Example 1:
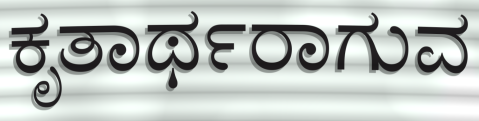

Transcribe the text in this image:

ಕೃತಾರ್ಥರಾಗುವ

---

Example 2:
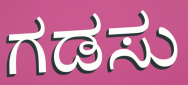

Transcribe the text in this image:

ಗಡಸು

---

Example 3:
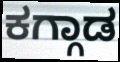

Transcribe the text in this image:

ಕಗ್ಗಾಡ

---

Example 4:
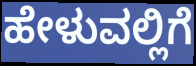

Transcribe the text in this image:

ಹೇಳುವಲ್ಲಿಗೆ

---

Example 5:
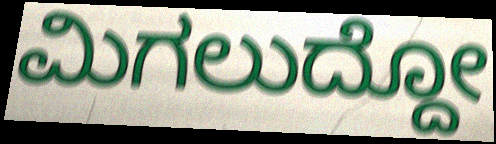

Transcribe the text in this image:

ಮಿಗಲುದ್ದೋ